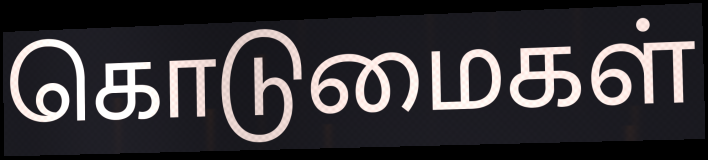
கொடுமைகள்